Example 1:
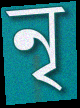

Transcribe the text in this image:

নৃ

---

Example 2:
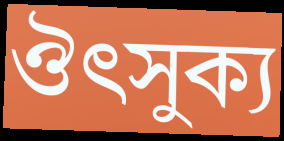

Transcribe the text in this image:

ঔৎসুক্য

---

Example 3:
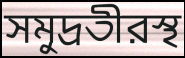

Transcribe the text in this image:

সমুদ্রতীরস্থ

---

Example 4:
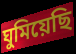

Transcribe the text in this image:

ঘুমিয়েছি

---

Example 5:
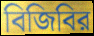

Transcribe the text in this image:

বিজিবির